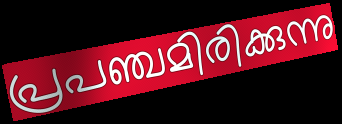
പ്രപഞ്ചമിരിക്കുന്നു